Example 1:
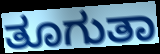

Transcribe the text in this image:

ತೂಗುತಾ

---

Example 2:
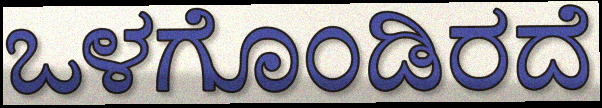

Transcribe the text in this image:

ಒಳಗೊಂಡಿರದೆ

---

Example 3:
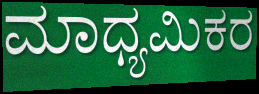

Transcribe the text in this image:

ಮಾಧ್ಯಮಿಕರ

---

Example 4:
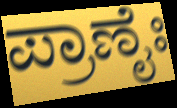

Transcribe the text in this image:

ಪ್ರಾಣೈಃ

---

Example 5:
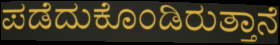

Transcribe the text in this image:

ಪಡೆದುಕೊಂಡಿರುತ್ತಾನೆ